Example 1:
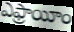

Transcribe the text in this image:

ఎఫ్రాయీం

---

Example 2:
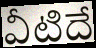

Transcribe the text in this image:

వీటిదే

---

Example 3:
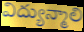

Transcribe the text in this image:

విద్యున్మాలి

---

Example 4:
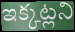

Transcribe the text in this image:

ఇక్కట్లని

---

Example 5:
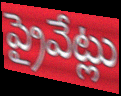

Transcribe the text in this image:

ప్రైవేట్లు